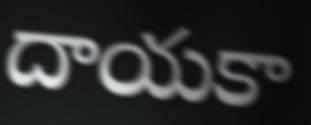
దాయకా